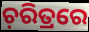
ଚ଼ରିତ୍ରରେ